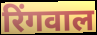
रिंगवाल